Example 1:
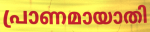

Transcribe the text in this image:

പ്രാണമായാതി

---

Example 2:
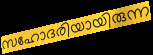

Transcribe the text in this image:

സഹോദരിയായിരുന്ന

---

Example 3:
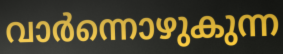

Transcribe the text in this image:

വാർന്നൊഴുകുന്ന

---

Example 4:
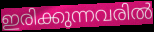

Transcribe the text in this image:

ഇരിക്കുന്നവരിൽ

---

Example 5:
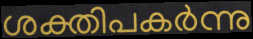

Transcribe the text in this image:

ശക്തിപകർന്നു